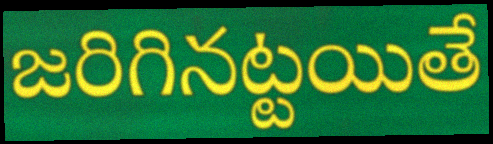
జరిగినట్టయితే